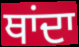
ਥਾਂਦਾ